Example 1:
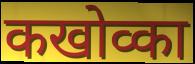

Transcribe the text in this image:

कखोव्का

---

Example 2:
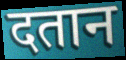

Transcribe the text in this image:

दतान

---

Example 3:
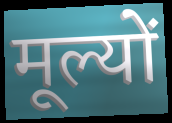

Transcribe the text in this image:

मूल्यों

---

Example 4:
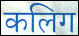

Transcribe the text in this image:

कलिग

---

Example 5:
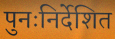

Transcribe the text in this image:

पुनःनिर्देशित